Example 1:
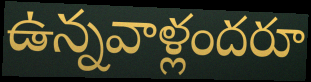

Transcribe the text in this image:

ఉన్నవాళ్లందరూ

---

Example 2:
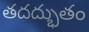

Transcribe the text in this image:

తదద్భుతం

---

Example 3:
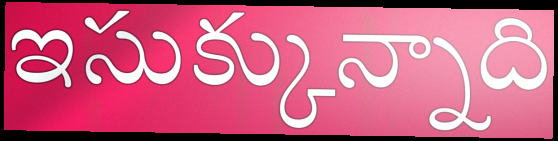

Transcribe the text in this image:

ఇసుక్కున్నాది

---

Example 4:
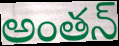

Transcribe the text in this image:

అంతన్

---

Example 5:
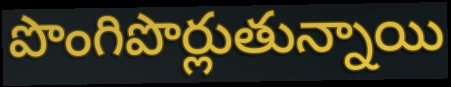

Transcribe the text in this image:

పొంగిపొర్లుతున్నాయి